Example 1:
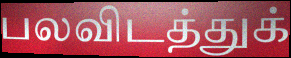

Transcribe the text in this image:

பலவிடத்துக்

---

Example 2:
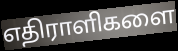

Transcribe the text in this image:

எதிராளிகளை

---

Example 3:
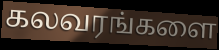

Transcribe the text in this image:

கலவரங்களை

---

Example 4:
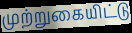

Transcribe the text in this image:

முற்றுகையிட்டு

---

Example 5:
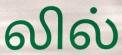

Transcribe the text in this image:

லில்